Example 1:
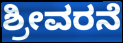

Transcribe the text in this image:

ಶ್ರೀವರನೆ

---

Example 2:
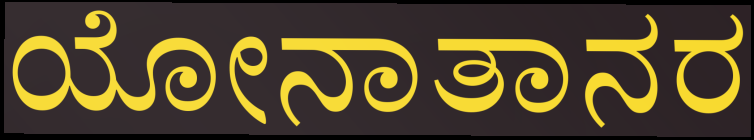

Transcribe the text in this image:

ಯೋನಾತಾನರ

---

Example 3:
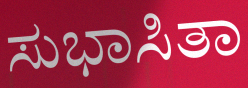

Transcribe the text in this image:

ಸುಭಾಸಿತಾ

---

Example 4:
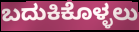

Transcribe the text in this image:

ಬದುಕಿಕೊಳ್ಳಲು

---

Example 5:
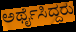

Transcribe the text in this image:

ಅರ್ಥೈಸಿದ್ದರು